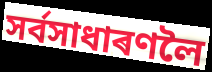
সৰ্বসাধাৰণলৈ